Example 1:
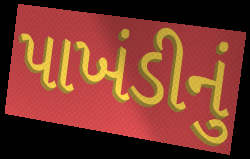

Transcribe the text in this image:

પાખંડીનું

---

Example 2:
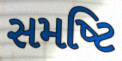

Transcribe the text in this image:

સમષ્‍ટિ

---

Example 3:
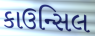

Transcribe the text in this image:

કાઉન્‍સિલ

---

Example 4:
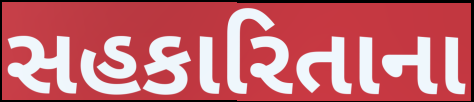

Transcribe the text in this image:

સહકારિતાના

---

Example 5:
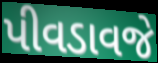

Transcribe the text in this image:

પીવડાવજે